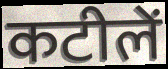
कटीलें